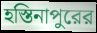
হস্তিনাপুরের